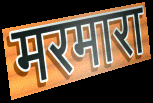
मरमारा